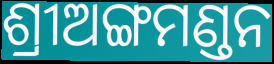
ଶ୍ରୀଅଙ୍ଗମଣ୍ଡନ